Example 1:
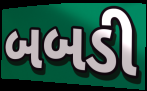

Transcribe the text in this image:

બબડી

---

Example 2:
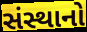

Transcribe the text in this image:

સંસ્થાનો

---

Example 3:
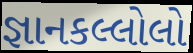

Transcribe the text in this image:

જ્ઞાનકલ્લોલો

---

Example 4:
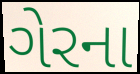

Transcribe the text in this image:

ગેરના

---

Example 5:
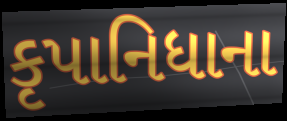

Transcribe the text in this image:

કૃપાનિધાના